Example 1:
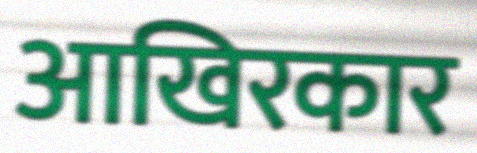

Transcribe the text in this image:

आखिरकार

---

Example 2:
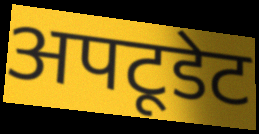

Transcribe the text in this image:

अपटूडेट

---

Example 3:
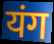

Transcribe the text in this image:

यंग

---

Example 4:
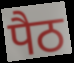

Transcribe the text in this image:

पैठ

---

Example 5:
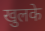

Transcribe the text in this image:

खुलके